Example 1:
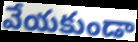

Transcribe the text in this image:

వేయకుండా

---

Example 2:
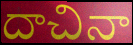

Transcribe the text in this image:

దాచినా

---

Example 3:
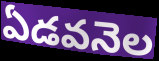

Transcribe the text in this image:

ఏడవనెల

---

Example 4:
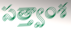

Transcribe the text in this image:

సత్త్వాంశ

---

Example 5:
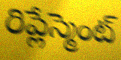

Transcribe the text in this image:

రిప్లేస్మెంట్